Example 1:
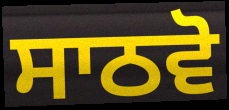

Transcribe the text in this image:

ਸਾਠਵੋ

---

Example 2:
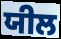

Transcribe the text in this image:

ਯੀਲ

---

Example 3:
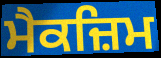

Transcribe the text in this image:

ਮੈਕਜ਼ਿਮ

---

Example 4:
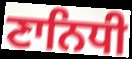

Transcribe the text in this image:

ਣਾਨਿਧੀ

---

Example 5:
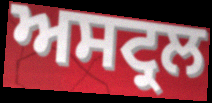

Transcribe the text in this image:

ਅਸਟ੍ਰਲ